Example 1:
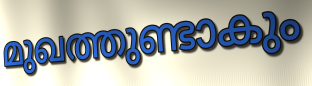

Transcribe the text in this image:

മുഖത്തുണ്ടാകും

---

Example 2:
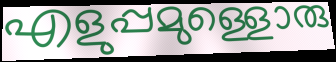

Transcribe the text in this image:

എളുപ്പമുള്ളൊരു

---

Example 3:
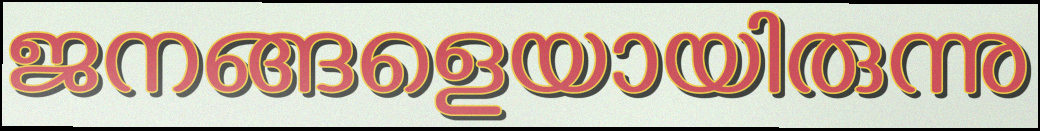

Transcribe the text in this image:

ജനങ്ങളെയായിരുന്നു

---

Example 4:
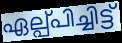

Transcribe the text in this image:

ഏല്പ്പിച്ചിട്ട്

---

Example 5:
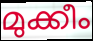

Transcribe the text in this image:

മുക്കീം